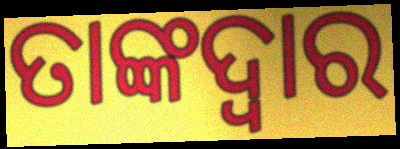
ତାଙ୍କଦ୍ୱାର